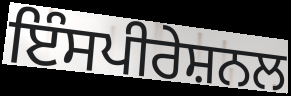
ਇੰਸਪੀਰੇਸ਼ਨਲ